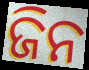
ଜିନ